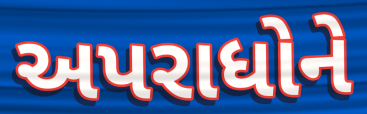
અપરાધોને